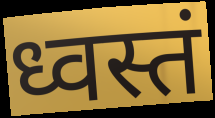
ध्वस्तं